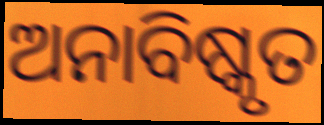
ଅନାବିଷ୍କୃତ